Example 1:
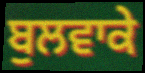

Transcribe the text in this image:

ਬੁਲਵਾਕੇ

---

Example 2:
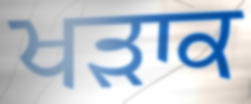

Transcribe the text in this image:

ਖੜਾਕ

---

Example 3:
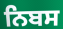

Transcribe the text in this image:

ਨਿਬਸ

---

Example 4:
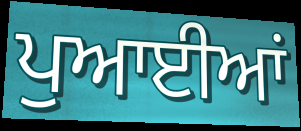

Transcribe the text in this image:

ਪੁਆਈਆਂ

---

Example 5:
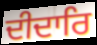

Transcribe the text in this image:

ਦੀਦਾਰਿ